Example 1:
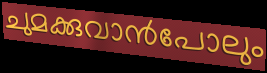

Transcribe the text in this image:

ചുമക്കുവാൻപോലും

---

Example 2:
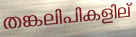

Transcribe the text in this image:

തങ്കലിപികളില്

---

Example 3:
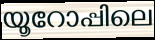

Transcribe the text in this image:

യൂറോപ്പിലെ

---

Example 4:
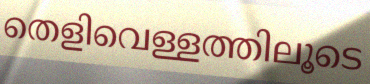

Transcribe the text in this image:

തെളിവെള്ളത്തിലൂടെ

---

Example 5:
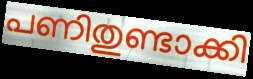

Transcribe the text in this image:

പണിതുണ്ടാക്കി